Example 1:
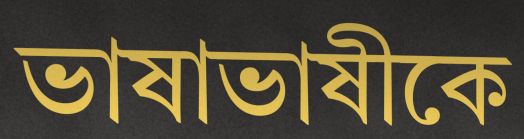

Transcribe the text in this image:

ভাষাভাষীকে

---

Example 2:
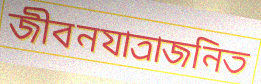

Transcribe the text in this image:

জীবনযাত্রাজনিত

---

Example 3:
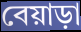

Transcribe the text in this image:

বেয়াড়া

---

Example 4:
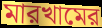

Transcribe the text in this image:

মারখামের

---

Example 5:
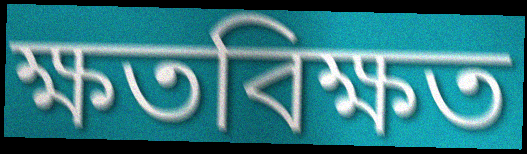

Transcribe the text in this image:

ক্ষতবিক্ষত